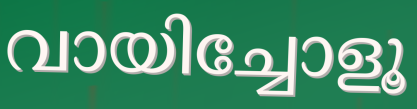
വായിച്ചോളൂ